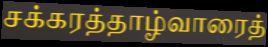
சக்கரத்தாழ்வாரைத்